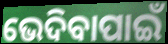
ଭେଦିବାପାଇଁ